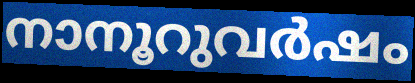
നാനൂറുവർഷം